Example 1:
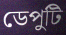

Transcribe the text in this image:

ডেপুটি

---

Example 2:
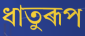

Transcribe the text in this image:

ধাতুৰূপ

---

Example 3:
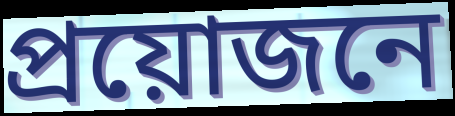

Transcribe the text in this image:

প্ৰয়োজনে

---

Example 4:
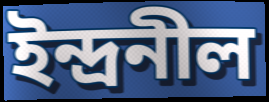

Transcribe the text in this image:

ইন্দ্ৰনীল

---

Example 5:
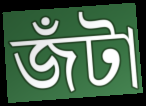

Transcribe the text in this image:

জঁটা